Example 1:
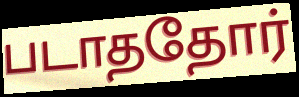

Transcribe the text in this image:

படாததோர்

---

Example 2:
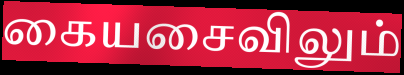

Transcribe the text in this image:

கையசைவிலும்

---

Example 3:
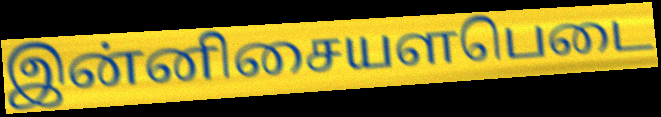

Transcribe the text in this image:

இன்னிசையளபெடை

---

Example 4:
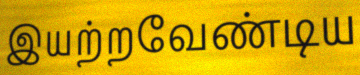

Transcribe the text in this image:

இயற்றவேண்டிய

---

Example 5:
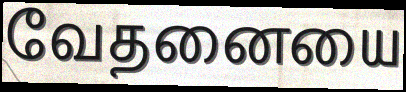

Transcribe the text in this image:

வேதனையை